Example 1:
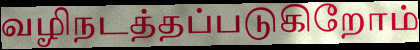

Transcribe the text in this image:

வழிநடத்தப்படுகிறோம்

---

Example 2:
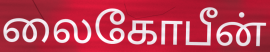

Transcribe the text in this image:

லைகோபீன்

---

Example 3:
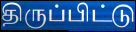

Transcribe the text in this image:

திருப்பிட்டு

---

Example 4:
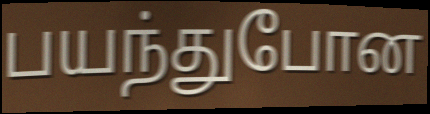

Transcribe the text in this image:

பயந்துபோன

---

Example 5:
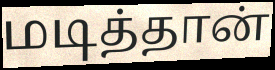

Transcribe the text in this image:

மடித்தான்